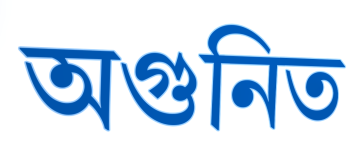
অগুনিত